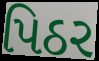
પિઠર